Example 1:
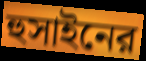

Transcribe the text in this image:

হুসাইনের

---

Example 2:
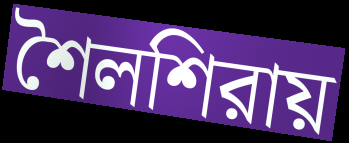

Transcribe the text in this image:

শৈলশিরায়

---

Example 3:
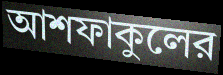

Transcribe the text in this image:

আশফাকুলের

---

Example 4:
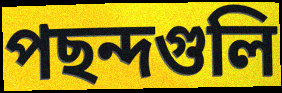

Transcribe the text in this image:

পছন্দগুলি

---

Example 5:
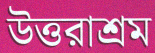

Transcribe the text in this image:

উত্তরাশ্রম